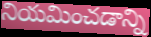
నియమించడాన్ని